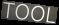
TOOL